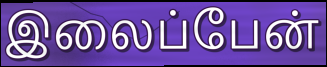
இலைப்பேன்